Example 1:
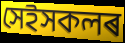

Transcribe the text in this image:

সেইসকলৰ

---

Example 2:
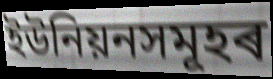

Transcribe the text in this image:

ইউনিয়নসমূহৰ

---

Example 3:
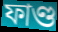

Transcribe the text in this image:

ফাণ্ড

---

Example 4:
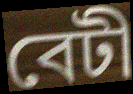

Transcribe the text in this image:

বেটী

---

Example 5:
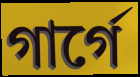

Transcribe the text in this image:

গাৰ্গে